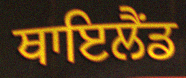
ਥਾਇਲੈਂਡ